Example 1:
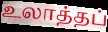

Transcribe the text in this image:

உலாத்தப்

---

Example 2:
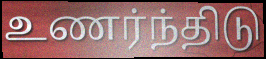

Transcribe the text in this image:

உணர்ந்திடு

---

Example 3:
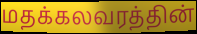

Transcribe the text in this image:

மதக்கலவரத்தின்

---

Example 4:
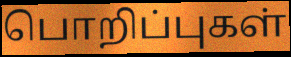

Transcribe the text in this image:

பொறிப்புகள்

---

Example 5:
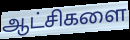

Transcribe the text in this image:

ஆட்சிகளை